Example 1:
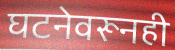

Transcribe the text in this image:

घटनेवरूनही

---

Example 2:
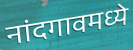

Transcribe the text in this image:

नांदगावमध्ये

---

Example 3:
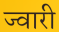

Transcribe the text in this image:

ज्वारी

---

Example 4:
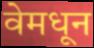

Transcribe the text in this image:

वेमधून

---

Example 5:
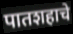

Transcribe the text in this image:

पातशहाचे